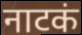
नाटकं